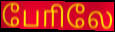
பேரிலே